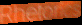
Rhetorics